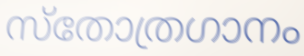
സ്തോത്രഗാനം